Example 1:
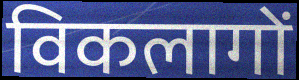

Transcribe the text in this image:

विकलागों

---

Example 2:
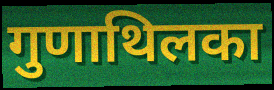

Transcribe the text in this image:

गुणाथिलका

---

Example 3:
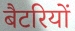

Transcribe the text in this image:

बैटरियों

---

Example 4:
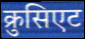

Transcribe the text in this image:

क्रुसिएट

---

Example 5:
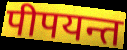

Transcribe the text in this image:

पीपयन्त